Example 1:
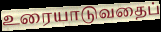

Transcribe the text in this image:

உரையாடுவதைப்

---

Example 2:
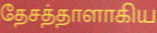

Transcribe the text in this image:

தேசத்தாளாகிய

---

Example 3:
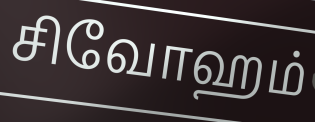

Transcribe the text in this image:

சிவோஹம்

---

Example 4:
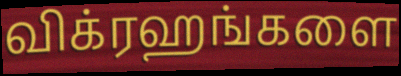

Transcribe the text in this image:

விக்ரஹங்களை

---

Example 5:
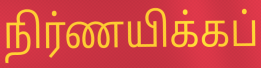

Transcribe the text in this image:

நிர்ணயிக்கப்